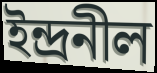
ইন্দ্ৰনীল